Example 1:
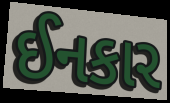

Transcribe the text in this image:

ઈનકાર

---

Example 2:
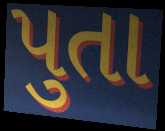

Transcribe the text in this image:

પુતા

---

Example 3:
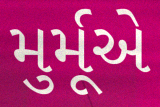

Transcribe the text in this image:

મુર્મૂએ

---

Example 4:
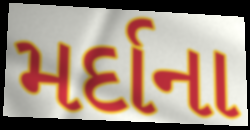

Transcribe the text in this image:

મર્દાના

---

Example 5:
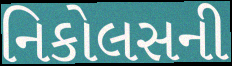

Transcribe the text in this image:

નિકોલસની